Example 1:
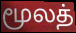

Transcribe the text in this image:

மூலத்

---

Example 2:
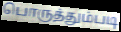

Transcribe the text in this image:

பொருத்தும்படி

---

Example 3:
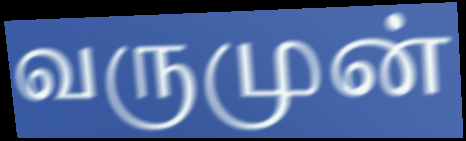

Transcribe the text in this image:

வருமுன்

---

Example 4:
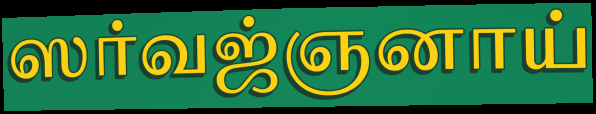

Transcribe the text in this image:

ஸர்வஜ்ஞனாய்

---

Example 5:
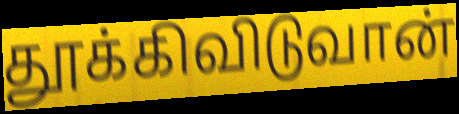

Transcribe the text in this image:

தூக்கிவிடுவான்